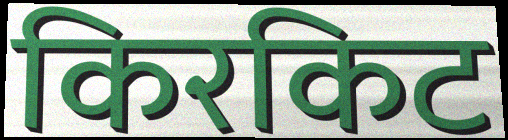
किरकिट